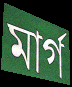
মাৰ্গ